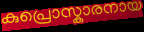
കുപ്രൊസ്കാരനായ